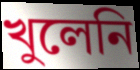
খুলেনি